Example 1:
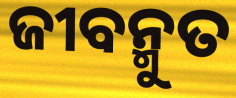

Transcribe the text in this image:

ଜୀବନ୍ମୁତ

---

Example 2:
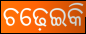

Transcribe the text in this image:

ଚଢ଼େଇକି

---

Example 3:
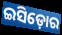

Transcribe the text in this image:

ଇସିଡ଼ୋର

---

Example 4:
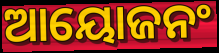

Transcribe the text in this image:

ଆୟୋଜନଂ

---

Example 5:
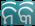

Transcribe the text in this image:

ନିକି